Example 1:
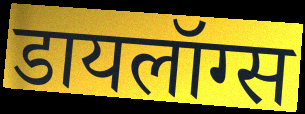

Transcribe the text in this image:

डायलॉग्स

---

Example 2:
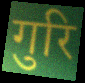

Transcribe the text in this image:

गुरि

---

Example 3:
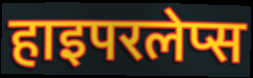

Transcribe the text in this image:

हाइपरलेप्स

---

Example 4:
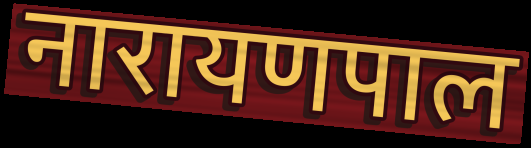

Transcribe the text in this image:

नारायणपाल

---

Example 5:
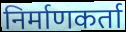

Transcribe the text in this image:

निर्माणकर्ता